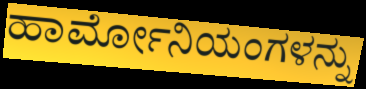
ಹಾರ್ಮೋನಿಯಂಗಳನ್ನು